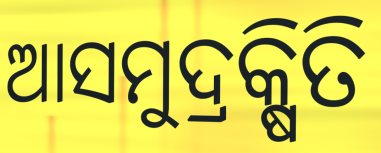
ଆସମୁଦ୍ରକ୍ଷିତି